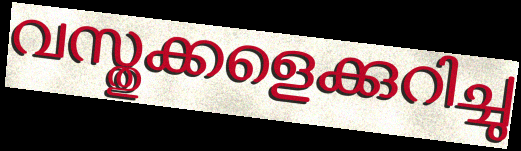
വസ്തുക്കളെക്കുറിച്ചു